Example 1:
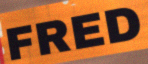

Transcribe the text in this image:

FRED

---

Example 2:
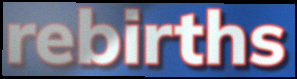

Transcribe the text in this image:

rebirths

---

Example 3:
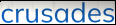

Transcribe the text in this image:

crusades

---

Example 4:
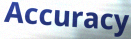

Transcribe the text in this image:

Accuracy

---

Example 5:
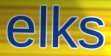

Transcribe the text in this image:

elks